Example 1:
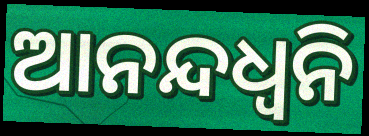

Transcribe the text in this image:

ଆନନ୍ଦଧ୍ଵନି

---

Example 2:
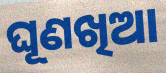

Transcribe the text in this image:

ଘୂଣଖିଆ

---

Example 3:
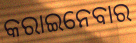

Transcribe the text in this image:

କରାଇନେବାର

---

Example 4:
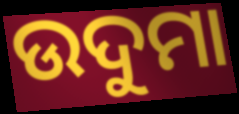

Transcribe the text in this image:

ଉଦୁମା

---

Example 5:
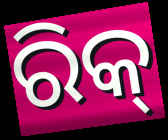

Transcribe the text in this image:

ରିକ୍